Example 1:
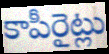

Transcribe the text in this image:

కాపీరైట్లు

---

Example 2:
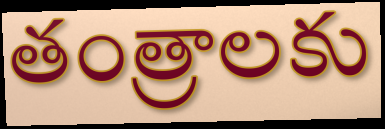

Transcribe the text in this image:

తంత్రాలకు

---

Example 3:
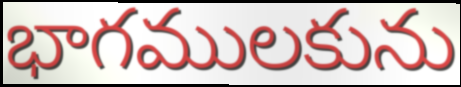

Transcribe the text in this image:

భాగములకును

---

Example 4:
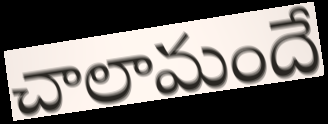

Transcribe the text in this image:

చాలామందే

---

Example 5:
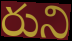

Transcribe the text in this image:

రుని